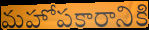
మహోపకారానికి